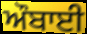
ਔਬਾਈ